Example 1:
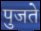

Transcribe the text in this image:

पुजते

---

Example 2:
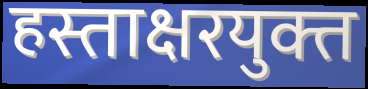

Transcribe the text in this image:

हस्ताक्षरयुक्त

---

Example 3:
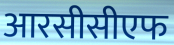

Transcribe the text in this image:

आरसीसीएफ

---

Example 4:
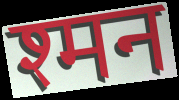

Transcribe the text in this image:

श्मन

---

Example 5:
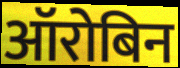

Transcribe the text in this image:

ऑरोबिन